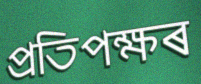
প্ৰতিপক্ষৰ